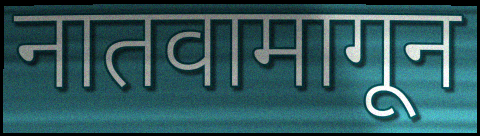
नातवामागून